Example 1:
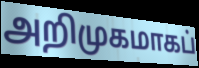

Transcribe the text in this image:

அறிமுகமாகப்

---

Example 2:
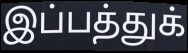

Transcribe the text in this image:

இப்பத்துக்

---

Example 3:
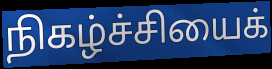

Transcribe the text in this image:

நிகழ்ச்சியைக்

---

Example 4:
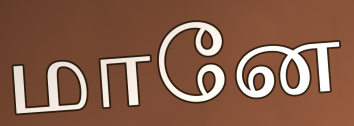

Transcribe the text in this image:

மானே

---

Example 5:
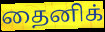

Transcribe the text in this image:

தைனிக்